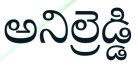
అనిల్రెడ్డి